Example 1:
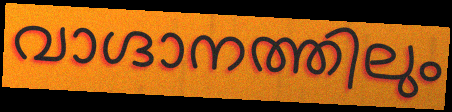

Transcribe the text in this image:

വാഗ്ദാനത്തിലും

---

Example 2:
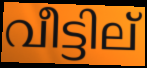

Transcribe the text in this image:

വീട്ടില്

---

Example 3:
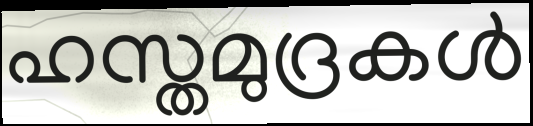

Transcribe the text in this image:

ഹസ്തമുദ്രകൾ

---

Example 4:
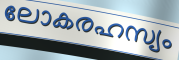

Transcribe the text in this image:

ലോകരഹസ്യം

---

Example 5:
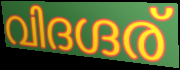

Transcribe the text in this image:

വിദഗ്ദര്